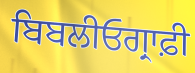
ਬਿਬਲੀਓਗ੍ਰਾਫ਼ੀ